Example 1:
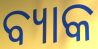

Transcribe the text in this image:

ବ୍ୟାକ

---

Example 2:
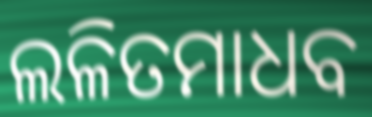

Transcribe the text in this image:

ଲଳିତମାଧବ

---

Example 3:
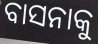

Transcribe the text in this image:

ବାସନାକୁ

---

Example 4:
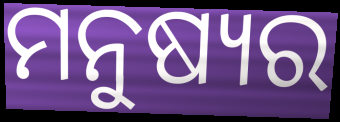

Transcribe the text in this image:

ମନୁଷ୍ୟର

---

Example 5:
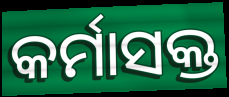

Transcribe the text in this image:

କର୍ମାସକ୍ତ